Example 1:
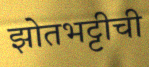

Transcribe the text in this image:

झोतभट्टीची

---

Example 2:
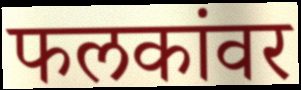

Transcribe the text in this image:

फलकांवर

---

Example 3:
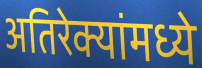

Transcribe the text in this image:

अतिरेक्यांमध्ये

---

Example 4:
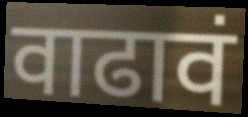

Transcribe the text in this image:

वाढावं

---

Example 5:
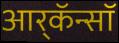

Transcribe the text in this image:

आर्‍कॅन्सॉ